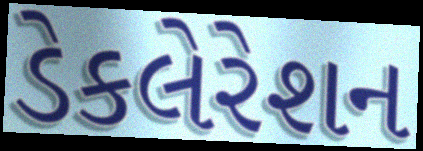
ડેકલેરેશન